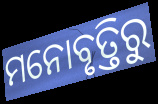
ମନୋବୃତ୍ତିରୁ